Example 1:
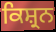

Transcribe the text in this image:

ਕਿਸ਼੍ਰਨ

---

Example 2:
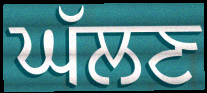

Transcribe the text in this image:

ਘੱਲਣ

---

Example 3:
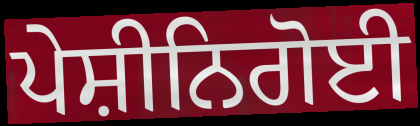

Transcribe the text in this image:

ਪੇਸ਼ੀਨਿਗੋਈ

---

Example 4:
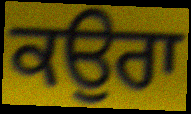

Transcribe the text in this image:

ਕਉਰਾ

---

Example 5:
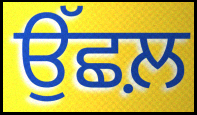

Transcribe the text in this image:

ਉੱਛਲ਼